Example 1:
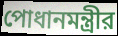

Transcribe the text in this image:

পোধানমন্ত্রীর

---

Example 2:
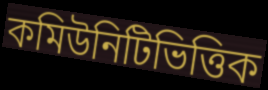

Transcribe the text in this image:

কমিউনিটিভিত্তিক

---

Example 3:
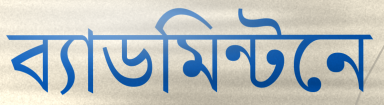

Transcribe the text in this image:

ব্যাডমিন্টনে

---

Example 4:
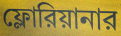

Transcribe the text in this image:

ফ্লোরিয়ানার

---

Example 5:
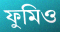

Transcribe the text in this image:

ফুমিও